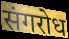
संगरोध